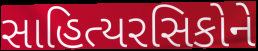
સાહિત્યરસિકોને